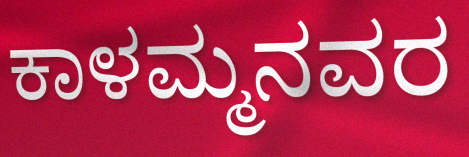
ಕಾಳಮ್ಮನವರ